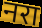
नरा